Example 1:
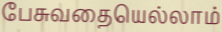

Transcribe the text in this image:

பேசுவதையெல்லாம்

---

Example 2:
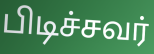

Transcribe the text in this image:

பிடிச்சவர்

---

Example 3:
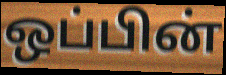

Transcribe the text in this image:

ஒப்பின்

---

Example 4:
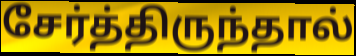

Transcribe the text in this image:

சேர்த்திருந்தால்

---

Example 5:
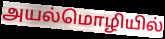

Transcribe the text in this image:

அயல்மொழியில்